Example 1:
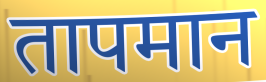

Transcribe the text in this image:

तापमान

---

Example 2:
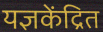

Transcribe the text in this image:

यज्ञकेंद्रित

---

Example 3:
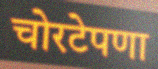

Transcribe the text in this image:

चोरटेपणा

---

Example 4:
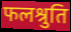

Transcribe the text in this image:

फलश्रुति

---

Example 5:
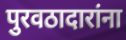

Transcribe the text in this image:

पुरवठादारांना